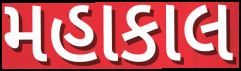
મહાકાલ